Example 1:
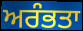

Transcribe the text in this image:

ਅਰੰਭਤਾ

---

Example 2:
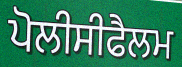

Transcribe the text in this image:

ਪੋਲੀਸੀਫੈਲਮ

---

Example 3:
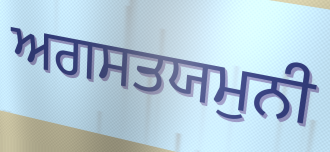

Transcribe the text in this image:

ਅਗਸਤਯਮੁਨੀ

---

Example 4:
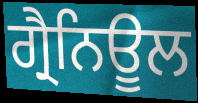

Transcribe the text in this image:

ਗ੍ਰੈਨਿਊਲ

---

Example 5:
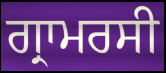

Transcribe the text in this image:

ਗ੍ਰਾਮਰਸੀ